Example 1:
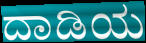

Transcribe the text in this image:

ದಾಡಿಯ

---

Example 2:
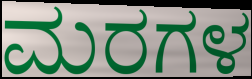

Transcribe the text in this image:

ಮರಗಳ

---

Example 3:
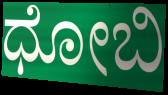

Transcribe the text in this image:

ಧೋಬಿ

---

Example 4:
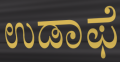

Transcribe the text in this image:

ಉಡಾಫೆ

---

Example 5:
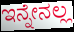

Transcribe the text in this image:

ಇನ್ನೇನಲ್ಲ